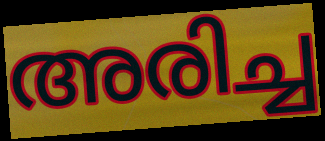
അരിച്ച